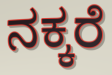
ನಕ್ಕರೆ